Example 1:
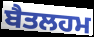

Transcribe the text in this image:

ਬੈਤਲਹਮ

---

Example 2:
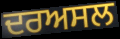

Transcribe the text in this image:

ਦਰਅਸਲ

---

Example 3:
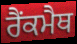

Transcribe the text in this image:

ਰੈਂਕਮੈਥ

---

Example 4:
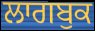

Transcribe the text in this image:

ਲਾਗਬੁਕ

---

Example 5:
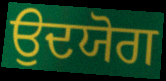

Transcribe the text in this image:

ਉਦਯੋਗ